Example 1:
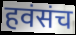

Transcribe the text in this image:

हवंसंच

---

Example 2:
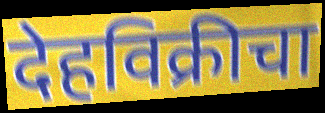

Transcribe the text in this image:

देहविक्रीचा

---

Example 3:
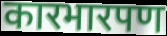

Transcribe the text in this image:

कारभारपण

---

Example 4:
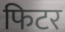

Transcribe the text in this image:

फिटर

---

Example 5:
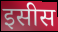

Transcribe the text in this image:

इसीस